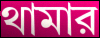
থামার